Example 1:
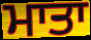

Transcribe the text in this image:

ਮਾਤਾ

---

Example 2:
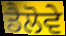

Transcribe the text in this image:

ਡੈਲੋਵੇ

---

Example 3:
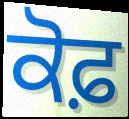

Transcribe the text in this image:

ਕੋਫ਼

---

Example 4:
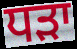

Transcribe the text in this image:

ਧੜਾ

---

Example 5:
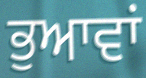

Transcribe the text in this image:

ਭੁਆਵਾਂ